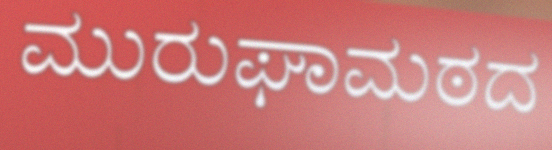
ಮುರುಘಾಮಠದ